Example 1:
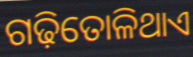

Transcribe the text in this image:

ଗଢ଼ିତୋଳିଥାଏ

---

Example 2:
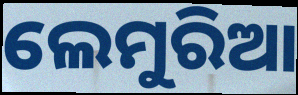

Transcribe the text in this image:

ଲେମୁରିଆ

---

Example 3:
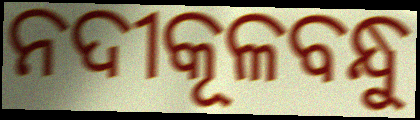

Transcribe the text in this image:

ନଦୀକୂଳବନ୍ଧୁ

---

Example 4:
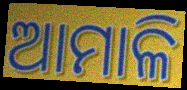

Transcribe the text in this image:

ଆମାଳି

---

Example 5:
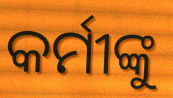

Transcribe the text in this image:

କର୍ମୀଙ୍କୁ